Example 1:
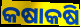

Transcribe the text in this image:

କଷାକଷି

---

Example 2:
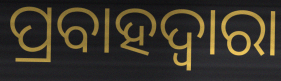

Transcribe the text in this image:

ପ୍ରବାହଦ୍ୱାରା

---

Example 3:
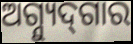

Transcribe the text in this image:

ଅଗ୍ନ୍ୟୁଦ୍‌ଗାର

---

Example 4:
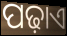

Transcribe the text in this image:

ପଢ଼ାଏ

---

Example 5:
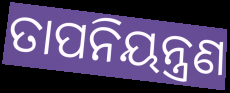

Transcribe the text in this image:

ତାପନିୟନ୍ତ୍ରଣ